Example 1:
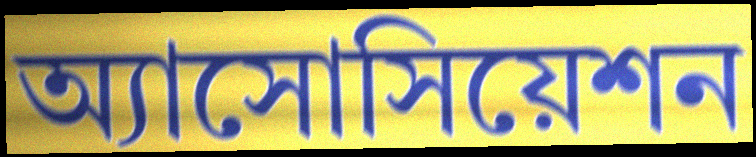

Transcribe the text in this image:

অ্যাসোসিয়েশন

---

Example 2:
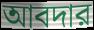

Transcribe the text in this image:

আবদার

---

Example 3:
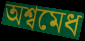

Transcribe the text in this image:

অশ্বমেধ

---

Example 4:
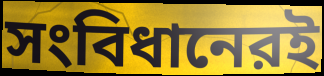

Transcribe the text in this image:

সংবিধানেরই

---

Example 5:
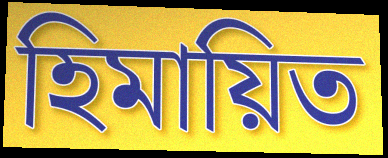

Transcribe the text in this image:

হিমায়িত